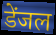
डेंजल